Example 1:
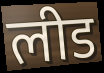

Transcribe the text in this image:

लीड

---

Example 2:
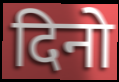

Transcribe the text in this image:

दिनो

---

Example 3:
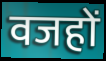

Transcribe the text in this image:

वजहों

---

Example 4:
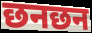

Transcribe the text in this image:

छनछन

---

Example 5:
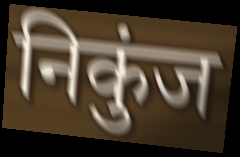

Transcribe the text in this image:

निकुंज